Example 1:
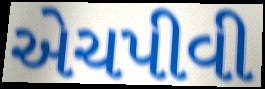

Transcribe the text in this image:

એચપીવી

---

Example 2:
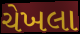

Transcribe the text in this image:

ચેખલા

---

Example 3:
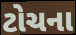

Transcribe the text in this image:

ટોચના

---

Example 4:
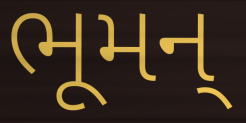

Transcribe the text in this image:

ભૂમન્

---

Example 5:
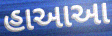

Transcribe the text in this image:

હાઆઆ